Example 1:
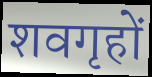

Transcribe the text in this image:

शवगृहों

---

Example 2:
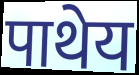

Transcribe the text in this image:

पाथेय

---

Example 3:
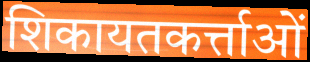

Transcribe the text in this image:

शिकायतकर्त्ताओं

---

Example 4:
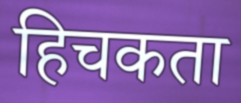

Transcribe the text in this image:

हिचकता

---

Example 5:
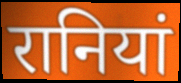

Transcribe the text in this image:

रानियां